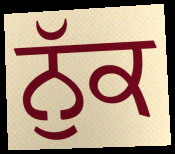
ਨੁੱਕ